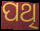
ପଥି